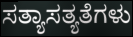
ಸತ್ಯಾಸತ್ಯತೆಗಳು